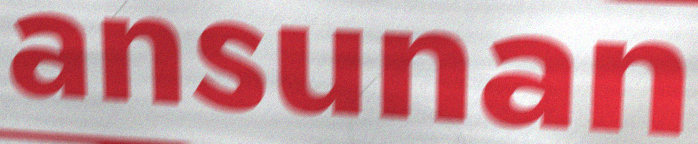
ansunan